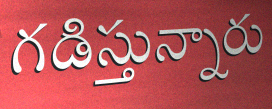
గడిస్తున్నారు